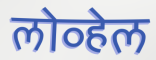
लोव्हेल